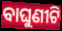
ବାଘୁଣୀଟି